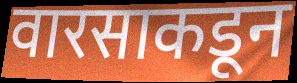
वारसाकडून